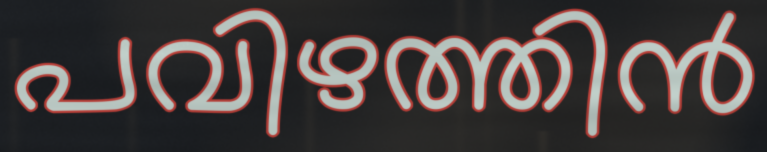
പവിഴത്തിൻ